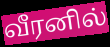
வீரனில்